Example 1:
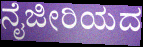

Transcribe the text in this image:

ನೈಜೀರಿಯದ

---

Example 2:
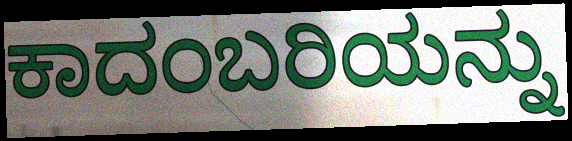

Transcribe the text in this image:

ಕಾದಂಬರಿಯನ್ನು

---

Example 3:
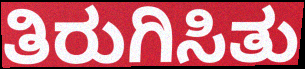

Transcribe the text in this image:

ತಿರುಗಿಸಿತು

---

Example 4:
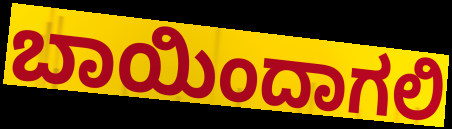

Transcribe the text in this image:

ಬಾಯಿಂದಾಗಲಿ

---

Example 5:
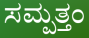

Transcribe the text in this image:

ಸಮ್ಪತ್ತಂ